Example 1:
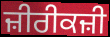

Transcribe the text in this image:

ਜ਼ੀਰੀਕਜ਼ੀ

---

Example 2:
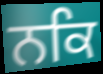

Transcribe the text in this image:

ਨਕਿ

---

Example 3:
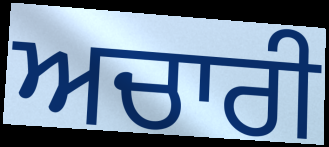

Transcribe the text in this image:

ਅਚਾਰੀ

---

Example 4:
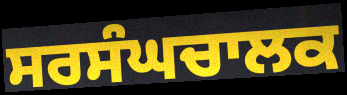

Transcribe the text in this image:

ਸਰਸੰਘਚਾਲਕ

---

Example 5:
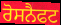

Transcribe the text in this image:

ਰੋਸਨੈਫਟ